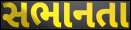
સભાનતા